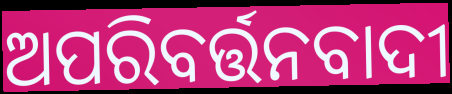
ଅପରିବର୍ତ୍ତନବାଦୀ